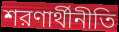
শরণার্থীনীতি